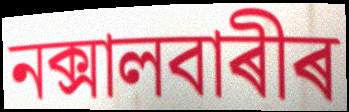
নক্সালবাৰীৰ